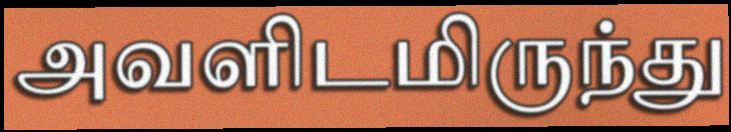
அவளிடமிருந்து